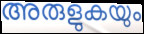
അരുളുകയും